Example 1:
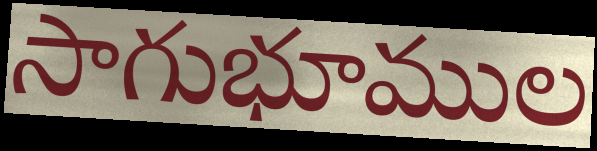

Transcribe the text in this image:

సాగుభూముల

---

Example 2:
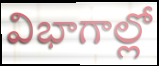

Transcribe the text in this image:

విభాగాల్లో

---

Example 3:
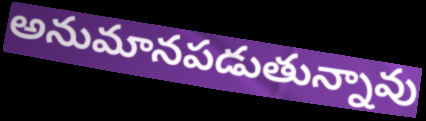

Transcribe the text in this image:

అనుమానపడుతున్నావు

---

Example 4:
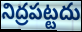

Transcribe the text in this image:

నిద్రపట్టదు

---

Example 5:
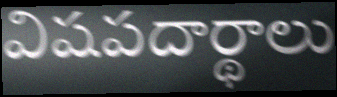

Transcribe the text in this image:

విషపదార్థాలు